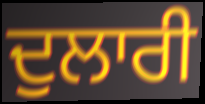
ਦੁਲਾਰੀ